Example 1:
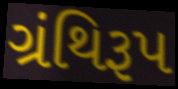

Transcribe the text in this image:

ગ્રંથિરૂપ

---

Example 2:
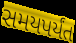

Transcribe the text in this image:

સમયપર્યંત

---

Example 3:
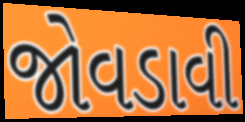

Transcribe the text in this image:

જોવડાવી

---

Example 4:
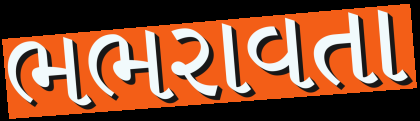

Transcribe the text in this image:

ભભરાવતા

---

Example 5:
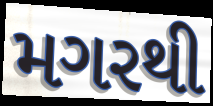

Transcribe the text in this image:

મગરથી